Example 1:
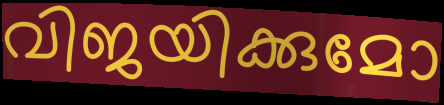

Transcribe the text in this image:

വിജയിക്കുമോ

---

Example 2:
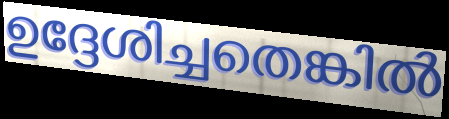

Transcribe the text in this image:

ഉദ്ദേശിച്ചതെങ്കിൽ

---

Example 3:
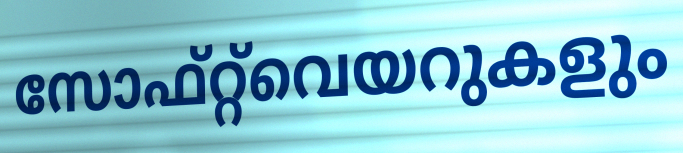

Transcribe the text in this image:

സോഫ്റ്റ്‌വെയറുകളും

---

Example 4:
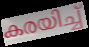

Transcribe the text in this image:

കരയിച്ച്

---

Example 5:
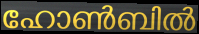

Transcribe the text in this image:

ഹോൺബിൽ